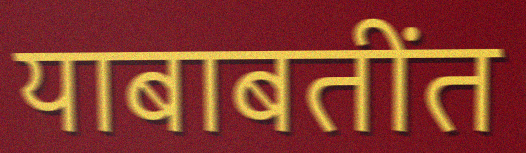
याबाबतींत